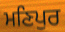
ਮਣਿਪੁਰ